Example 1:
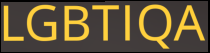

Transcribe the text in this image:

LGBTIQA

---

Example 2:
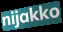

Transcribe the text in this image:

nijakko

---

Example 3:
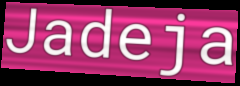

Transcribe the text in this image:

Jadeja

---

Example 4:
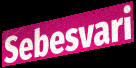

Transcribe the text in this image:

Sebesvari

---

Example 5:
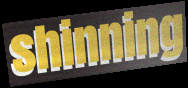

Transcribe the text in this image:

shinning